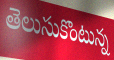
తెలుసుకొంటున్న